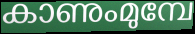
കാണുംമുമ്പേ